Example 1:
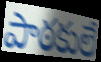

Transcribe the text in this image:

పాఠకులే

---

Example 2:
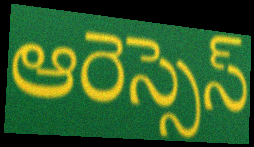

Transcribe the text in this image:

ఆరెస్సెస్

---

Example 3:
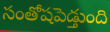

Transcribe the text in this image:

సంతోషపెడ్తుంది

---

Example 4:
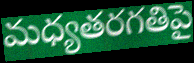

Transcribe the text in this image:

మధ్యతరగతిపై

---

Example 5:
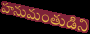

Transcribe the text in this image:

హనుమంతుడిని